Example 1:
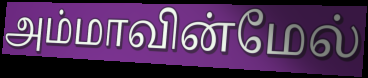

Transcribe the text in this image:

அம்மாவின்மேல்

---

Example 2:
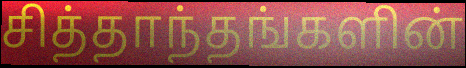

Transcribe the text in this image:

சித்தாந்தங்களின்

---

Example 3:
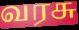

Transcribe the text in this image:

வரசு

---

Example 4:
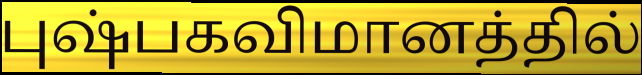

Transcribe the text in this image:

புஷ்பகவிமானத்தில்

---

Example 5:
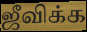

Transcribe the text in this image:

ஜீவிக்க